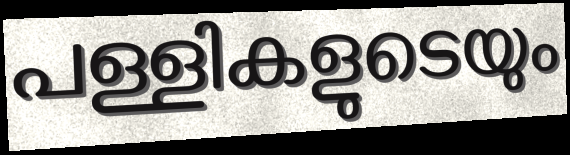
പള്ളികളുടെയും